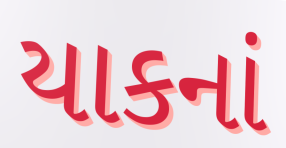
યાકનાં